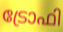
ട്രോഫി